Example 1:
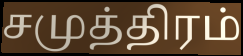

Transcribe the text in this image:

சமுத்திரம்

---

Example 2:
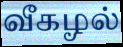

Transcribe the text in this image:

வீகழல்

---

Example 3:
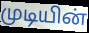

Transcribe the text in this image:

முடியின்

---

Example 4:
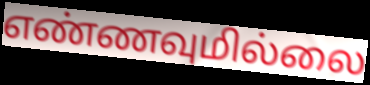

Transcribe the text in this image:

எண்ணவுமில்லை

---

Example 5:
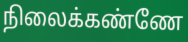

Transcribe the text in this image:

நிலைக்கண்ணே